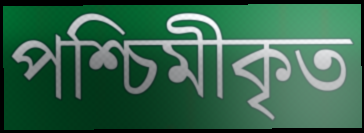
পশ্চিমীকৃত